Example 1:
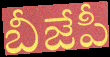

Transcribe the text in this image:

బీజేపీ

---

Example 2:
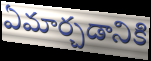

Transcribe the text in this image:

ఏమార్చడానికి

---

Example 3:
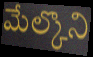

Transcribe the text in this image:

మేల్కొని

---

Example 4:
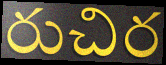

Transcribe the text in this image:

రుచిర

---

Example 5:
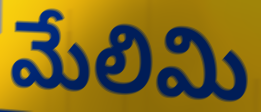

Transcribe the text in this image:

మేలిమి